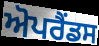
ਅੋਪਰੈਂਡਸ